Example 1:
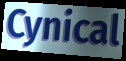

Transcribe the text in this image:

Cynical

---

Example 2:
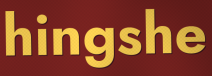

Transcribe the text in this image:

hingshe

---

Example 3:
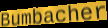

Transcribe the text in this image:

Bumbacher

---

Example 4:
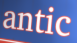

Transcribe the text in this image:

antic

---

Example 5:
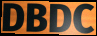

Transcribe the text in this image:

DBDC